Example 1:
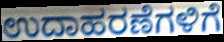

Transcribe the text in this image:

ಉದಾಹರಣೆಗಳಿಗೆ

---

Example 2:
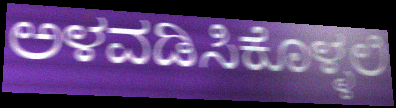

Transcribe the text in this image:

ಅಳವಡಿಸಿಕೊಳ್ಳಲಿ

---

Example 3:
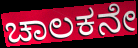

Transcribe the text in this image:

ಚಾಲಕನೇ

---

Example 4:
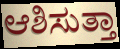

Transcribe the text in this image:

ಆಶಿಸುತ್ತಾ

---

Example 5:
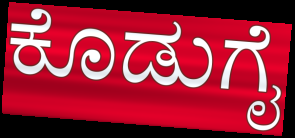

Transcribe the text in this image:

ಕೊಡುಗೈ